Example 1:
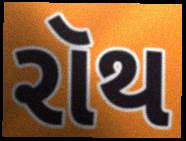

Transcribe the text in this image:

રૉથ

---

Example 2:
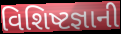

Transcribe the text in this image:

વિશિષ્ટજ્ઞાની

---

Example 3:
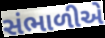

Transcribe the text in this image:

સંભાળીએ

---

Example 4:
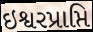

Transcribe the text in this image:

ઇશ્વરપ્રાપ્તિ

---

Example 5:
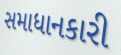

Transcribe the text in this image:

સમાધાનકારી